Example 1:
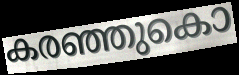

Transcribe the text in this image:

കരഞ്ഞുകൊ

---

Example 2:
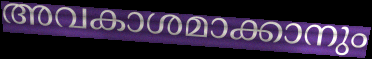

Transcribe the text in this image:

അവകാശമാക്കാനും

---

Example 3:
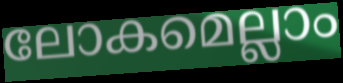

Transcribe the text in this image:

ലോകമെല്ലാം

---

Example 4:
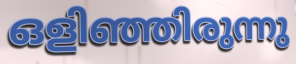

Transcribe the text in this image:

ഒളിഞ്ഞിരുന്നു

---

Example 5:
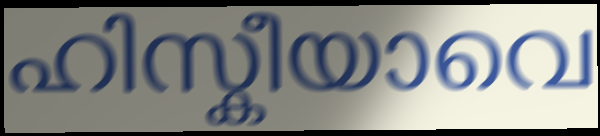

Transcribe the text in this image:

ഹിസ്കീയാവെ